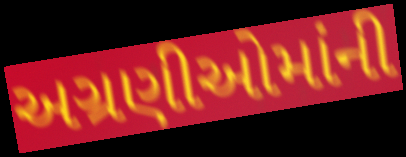
અગ્રણીઓમાંની